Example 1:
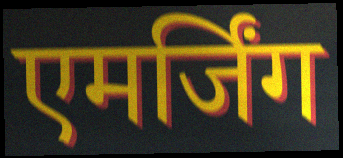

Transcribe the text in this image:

एमर्जिंग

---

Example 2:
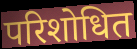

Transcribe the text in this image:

परिशोधित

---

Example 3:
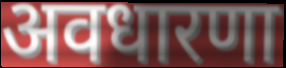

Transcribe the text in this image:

अवधारणा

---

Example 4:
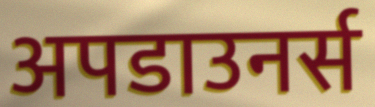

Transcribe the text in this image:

अपडाउनर्स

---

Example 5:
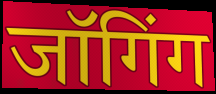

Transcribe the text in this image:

जॉगिंग